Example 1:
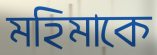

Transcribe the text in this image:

মহিমাকে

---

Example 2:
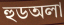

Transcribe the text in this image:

হুডঅলা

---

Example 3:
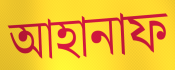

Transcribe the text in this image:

আহানাফ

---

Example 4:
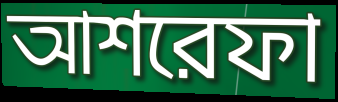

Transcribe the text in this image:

আশরেফা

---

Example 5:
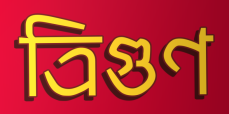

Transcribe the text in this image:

ত্রিগুণ